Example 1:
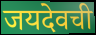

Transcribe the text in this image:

जयदेवची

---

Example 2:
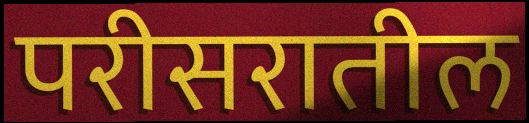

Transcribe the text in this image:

परीसरातील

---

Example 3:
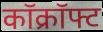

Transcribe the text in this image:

कॉक्रॉफ्ट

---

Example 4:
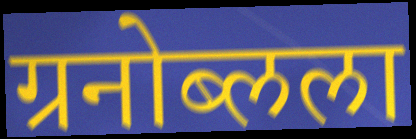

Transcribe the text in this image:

ग्रनोब्लला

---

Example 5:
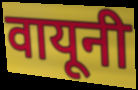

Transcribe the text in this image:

वायूनी